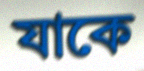
যাকে